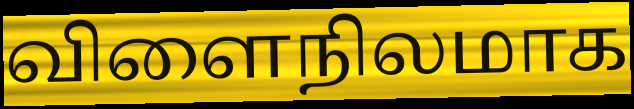
விளைநிலமாக